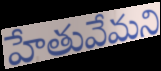
హేతువేమని